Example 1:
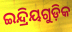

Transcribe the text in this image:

ଇନ୍ଦ୍ରିୟଗୁଡ଼ିକ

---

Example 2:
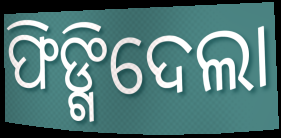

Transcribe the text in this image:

ଫିଙ୍ଗିଦେଲା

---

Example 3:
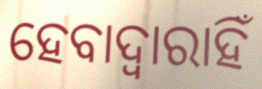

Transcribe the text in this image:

ହେବାଦ୍ଵାରାହିଁ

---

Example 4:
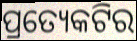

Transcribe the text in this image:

ପ୍ରତ୍ୟେକଟିର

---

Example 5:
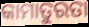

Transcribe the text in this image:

କାମାତୁରତା